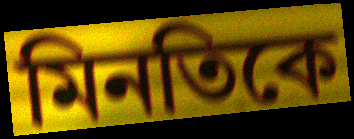
মিনতিকে